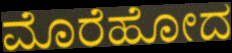
ಮೊರೆಹೋದ